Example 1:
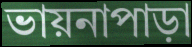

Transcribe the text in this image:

ভায়নাপাড়া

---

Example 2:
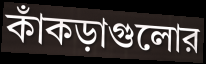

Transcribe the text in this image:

কাঁকড়াগুলোর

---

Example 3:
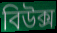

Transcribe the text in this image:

বিউক্স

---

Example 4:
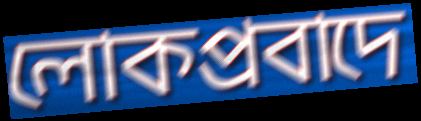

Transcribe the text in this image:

লোকপ্রবাদে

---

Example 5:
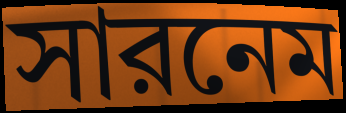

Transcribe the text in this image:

সারনেম